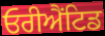
ਓਰੀਐਂਟਿਡ